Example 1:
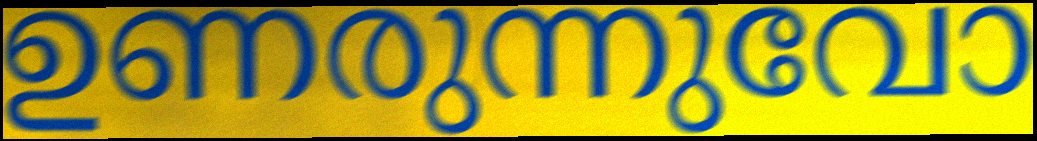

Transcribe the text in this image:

ഉണരുന്നുവോ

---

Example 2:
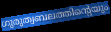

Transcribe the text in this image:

ഗുരുത്വബലത്തിന്റെയും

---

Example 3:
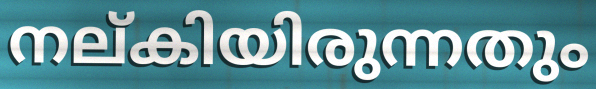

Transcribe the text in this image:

നല്കിയിരുന്നതും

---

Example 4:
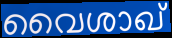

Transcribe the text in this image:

വൈശാഖ്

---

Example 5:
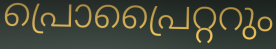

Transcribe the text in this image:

പ്രൊപ്രൈറ്ററും